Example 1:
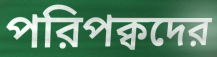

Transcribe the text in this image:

পরিপক্বদের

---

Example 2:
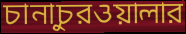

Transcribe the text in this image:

চানাচুরওয়ালার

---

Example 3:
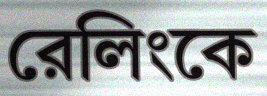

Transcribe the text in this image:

রেলিংকে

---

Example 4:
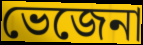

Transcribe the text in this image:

ভেজেনা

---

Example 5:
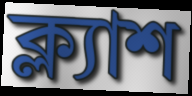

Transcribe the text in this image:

ক্ল্যাশ